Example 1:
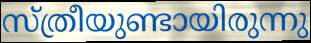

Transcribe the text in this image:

സ്ത്രീയുണ്ടായിരുന്നു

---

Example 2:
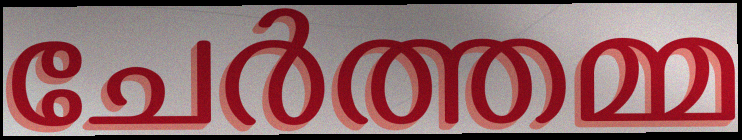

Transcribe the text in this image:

ചേർത്തമ്മ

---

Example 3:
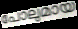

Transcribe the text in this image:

പോലുമായ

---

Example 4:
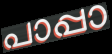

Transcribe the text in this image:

പാപ്പാ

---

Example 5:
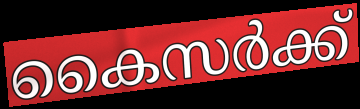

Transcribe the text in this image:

കൈസർക്ക്